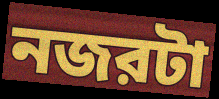
নজরটা